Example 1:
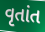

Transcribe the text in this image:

વૃતાંત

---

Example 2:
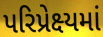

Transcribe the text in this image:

પરિપ્રેક્ષ્યમાં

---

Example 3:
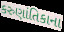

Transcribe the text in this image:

કરુણાંતિકાના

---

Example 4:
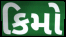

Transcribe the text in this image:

કિમો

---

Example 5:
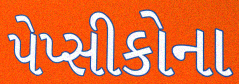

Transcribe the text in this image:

પેપ્સીકોના